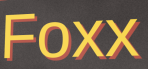
Foxx